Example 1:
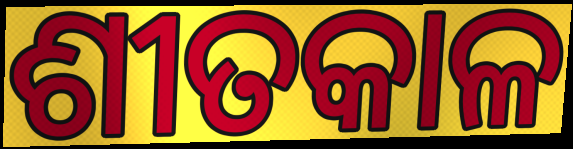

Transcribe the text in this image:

ଶୀତକାଳ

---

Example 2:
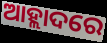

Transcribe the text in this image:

ଆହ୍ଲାଦରେ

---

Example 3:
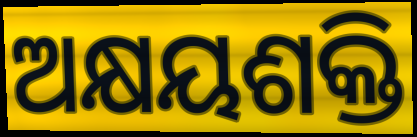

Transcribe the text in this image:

ଅକ୍ଷୟଶକ୍ତି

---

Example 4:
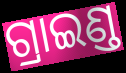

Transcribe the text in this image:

ଗ୍ରାଇଣ୍ଡ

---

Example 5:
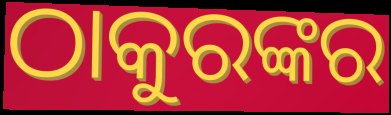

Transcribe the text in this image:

ଠାକୁରଙ୍କର